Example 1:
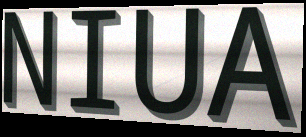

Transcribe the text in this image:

NIUA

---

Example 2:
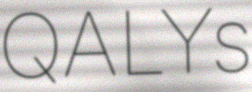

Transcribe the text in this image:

QALYs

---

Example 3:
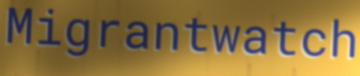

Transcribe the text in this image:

Migrantwatch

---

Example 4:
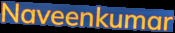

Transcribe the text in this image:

Naveenkumar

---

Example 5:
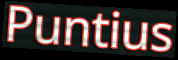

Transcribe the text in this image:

Puntius